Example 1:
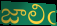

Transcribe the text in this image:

జాలిఁ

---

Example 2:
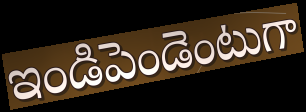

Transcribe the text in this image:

ఇండిపెండెంటుగా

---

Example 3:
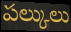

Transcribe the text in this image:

పల్కులు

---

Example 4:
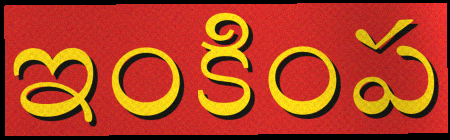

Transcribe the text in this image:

ఇంకింప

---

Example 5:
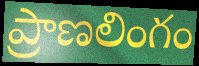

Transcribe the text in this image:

ప్రాణలింగం